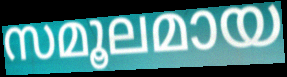
സമൂലമായ